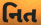
નિત